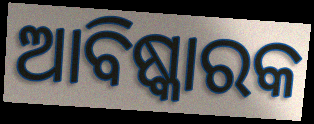
ଆବିଷ୍କାରକ